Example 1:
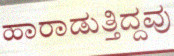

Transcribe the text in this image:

ಹಾರಾಡುತ್ತಿದ್ದವು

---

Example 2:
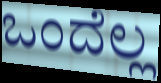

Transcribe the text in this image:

ಒಂದೆಲ್ಲ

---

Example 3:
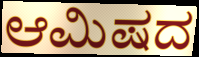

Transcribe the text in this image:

ಆಮಿಷದ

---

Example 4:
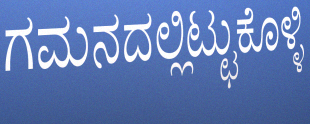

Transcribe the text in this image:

ಗಮನದಲ್ಲಿಟ್ಟುಕೊಳ್ಳಿ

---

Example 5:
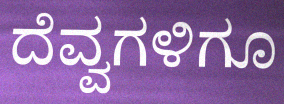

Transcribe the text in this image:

ದೆವ್ವಗಳಿಗೂ